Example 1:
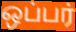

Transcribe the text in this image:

ஒப்பர்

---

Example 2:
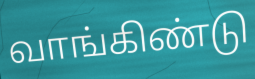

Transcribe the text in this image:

வாங்கிண்டு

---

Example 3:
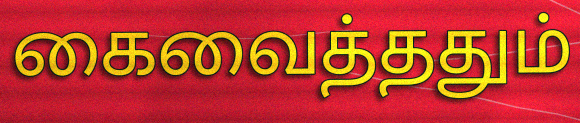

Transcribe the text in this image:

கைவைத்ததும்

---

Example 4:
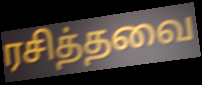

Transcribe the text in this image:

ரசித்தவை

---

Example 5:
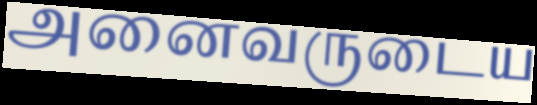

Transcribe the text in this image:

அனைவருடைய